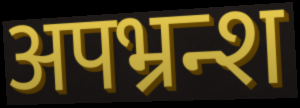
अपभ्रन्श